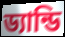
ড্যান্ডি